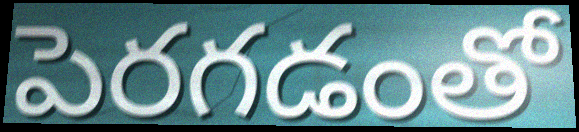
పెరగడంతో